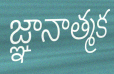
జ్ఞానాత్మక